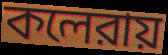
কলেরায়